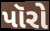
પૉરો